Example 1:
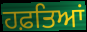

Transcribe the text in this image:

ਹਫ਼ਤਿਆਂ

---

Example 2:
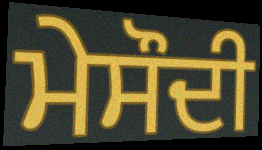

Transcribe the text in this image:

ਮੇਸੌਦੀ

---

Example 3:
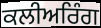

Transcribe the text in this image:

ਕਲੀਅਰਿੰਗ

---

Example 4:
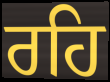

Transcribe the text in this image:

ਰਹਿ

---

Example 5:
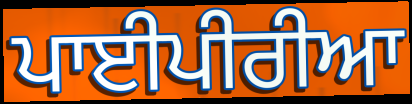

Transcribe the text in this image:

ਪਾਈਪੀਰੀਆ